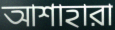
আশাহারা